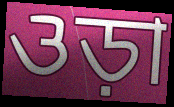
ওড়া